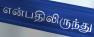
என்பதிலிருந்து